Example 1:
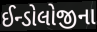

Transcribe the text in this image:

ઈન્ડોલોજીના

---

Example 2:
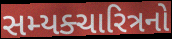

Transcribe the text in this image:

સમ્યક્ચારિત્રનો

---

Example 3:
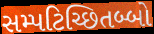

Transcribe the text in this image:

સમ્પટિચ્છિતબ્બો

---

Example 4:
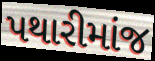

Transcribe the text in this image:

પથારીમાંજ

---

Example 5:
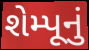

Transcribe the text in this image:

શેમ્પૂનું